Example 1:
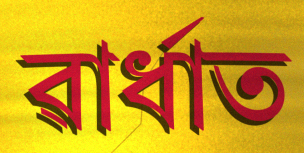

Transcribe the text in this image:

ৱাৰ্ধাত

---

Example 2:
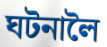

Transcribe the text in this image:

ঘটনালৈ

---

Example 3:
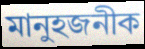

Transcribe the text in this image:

মানুহজনীক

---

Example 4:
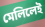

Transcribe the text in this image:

মেলিলেই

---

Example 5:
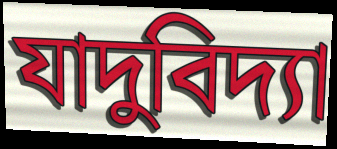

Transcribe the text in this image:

যাদুবিদ্যা